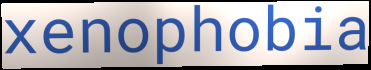
xenophobia